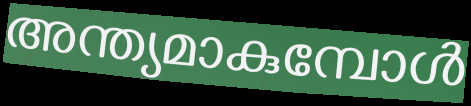
അന്ത്യമാകുമ്പോൾ